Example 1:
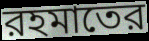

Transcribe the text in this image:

রহমাতের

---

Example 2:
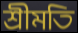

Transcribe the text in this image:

শ্রীমতি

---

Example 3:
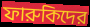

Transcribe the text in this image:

ফারুকিদের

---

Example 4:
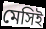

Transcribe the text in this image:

মেসিই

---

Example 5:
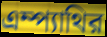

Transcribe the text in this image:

এম্প্যাথির